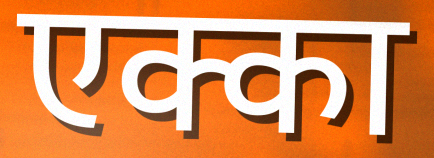
एक्का